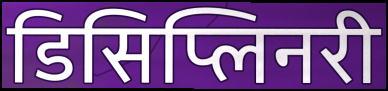
डिसिप्लिनरी